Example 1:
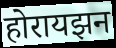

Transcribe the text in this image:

होरायझन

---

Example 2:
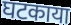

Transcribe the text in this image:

घटकाया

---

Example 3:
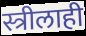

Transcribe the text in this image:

स्त्रीलाही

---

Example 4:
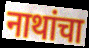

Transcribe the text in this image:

नाथांचा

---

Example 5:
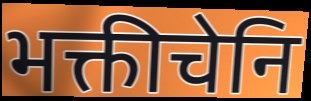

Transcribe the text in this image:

भक्तीचेनि